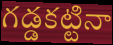
గడ్డకట్టినా